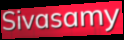
Sivasamy